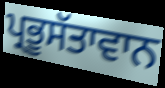
ਪ੍ਰਭੂਸੱਤਾਵਾਨ